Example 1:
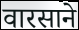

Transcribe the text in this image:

वारसाने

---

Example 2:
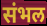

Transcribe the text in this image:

संभल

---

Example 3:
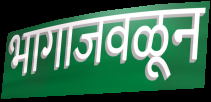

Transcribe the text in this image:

भागाजवळून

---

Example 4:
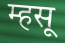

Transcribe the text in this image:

म्हसू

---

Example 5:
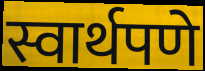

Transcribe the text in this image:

स्वार्थपणे